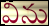
విను